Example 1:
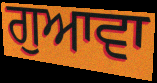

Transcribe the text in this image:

ਗੁਆਵਾ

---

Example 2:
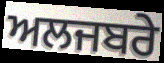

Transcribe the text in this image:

ਅਲਜਬਰੇ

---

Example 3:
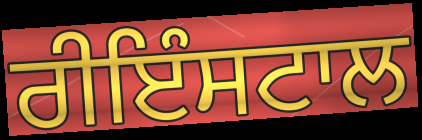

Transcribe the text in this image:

ਰੀਇੰਸਟਾਲ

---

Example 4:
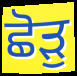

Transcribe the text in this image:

ਛੋੜੁ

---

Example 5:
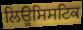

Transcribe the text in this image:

ਲਿਊਸਿਸਟਿਕ